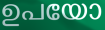
ഉപയോ